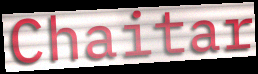
Chaitar